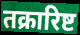
तक्रारिष्ट